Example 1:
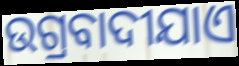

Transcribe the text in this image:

ଉଗ୍ରବାଦୀଯାଏ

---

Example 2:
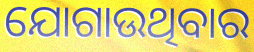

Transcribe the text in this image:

ଯୋଗାଉଥିବାର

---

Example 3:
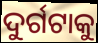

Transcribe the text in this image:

ଦୁର୍ଗଟାକୁ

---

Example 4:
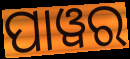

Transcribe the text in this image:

ପାୱର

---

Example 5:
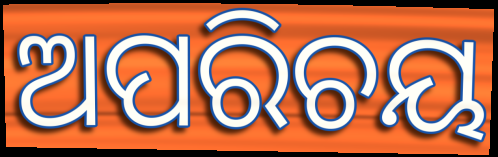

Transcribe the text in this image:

ଅପରିଚୟ